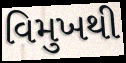
વિમુખથી